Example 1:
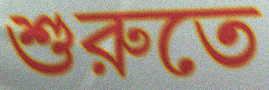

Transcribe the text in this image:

শুরুতে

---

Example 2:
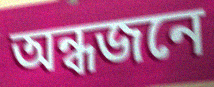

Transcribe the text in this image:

অন্ধজনে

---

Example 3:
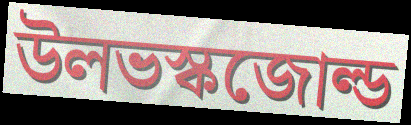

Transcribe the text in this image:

উলভস্কজোল্ড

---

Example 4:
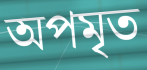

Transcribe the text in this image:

অপমৃত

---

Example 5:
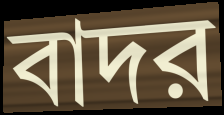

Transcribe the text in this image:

বাদর